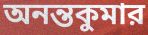
অনন্তকুমার